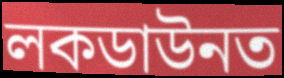
লকডাউনত